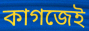
কাগজেই